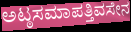
ಅಟ್ಠಸಮಾಪತ್ತಿವಸೇನ